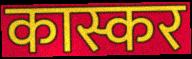
कास्कर